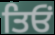
ਤਿਓਂ